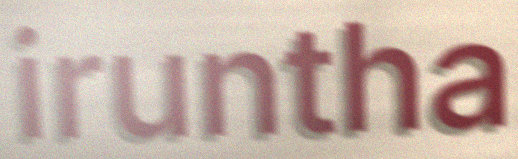
iruntha